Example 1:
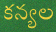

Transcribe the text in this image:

కన్యల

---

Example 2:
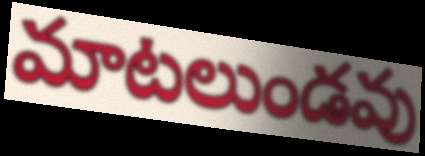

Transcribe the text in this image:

మాటలుండవు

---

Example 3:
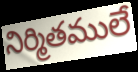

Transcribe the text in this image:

నిర్మితములే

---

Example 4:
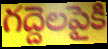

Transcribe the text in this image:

గద్దెలపైకి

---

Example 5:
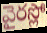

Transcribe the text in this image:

వైరస్లో